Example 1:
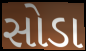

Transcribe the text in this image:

સોડા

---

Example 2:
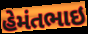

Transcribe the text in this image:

હેમંતભાઇ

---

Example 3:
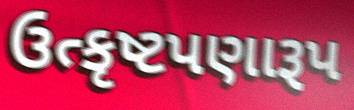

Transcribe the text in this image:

ઉત્કૃષ્ટપણારૂપ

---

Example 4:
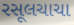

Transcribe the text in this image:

રસૂલચાચા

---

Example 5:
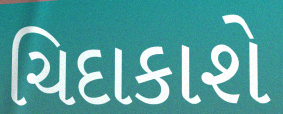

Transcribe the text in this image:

ચિદાકાશે